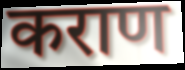
कराण